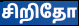
சிறிதோ